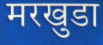
मरखुडा